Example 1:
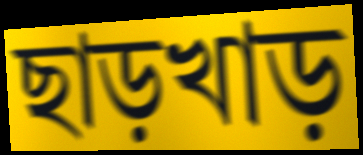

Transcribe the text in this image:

ছাড়খাড়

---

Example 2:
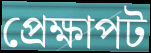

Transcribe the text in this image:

প্রেক্ষাপট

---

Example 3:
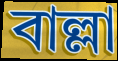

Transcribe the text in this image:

বাল্লা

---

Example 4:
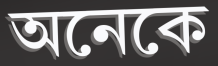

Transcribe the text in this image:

অনেকে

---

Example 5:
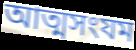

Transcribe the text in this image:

আত্মসংযম